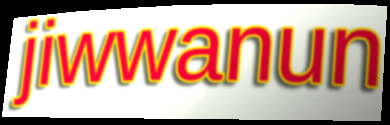
jiwwanun